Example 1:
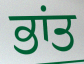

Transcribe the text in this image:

ਭਾਂਤ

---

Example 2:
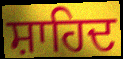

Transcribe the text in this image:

ਸ਼ਾਹਿਦ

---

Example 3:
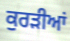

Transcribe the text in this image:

ਕੁਰੜੀਆਂ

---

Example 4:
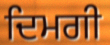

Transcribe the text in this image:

ਦਿਮਗੀ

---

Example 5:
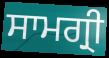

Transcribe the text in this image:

ਸਾਮਗ੍ਰੀ